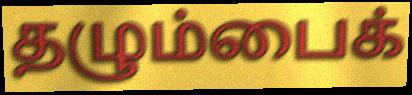
தழும்பைக்